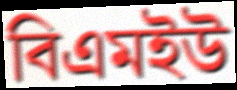
বিএমইউ